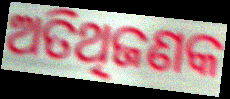
ଅତିଥିଜଣକ